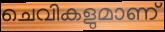
ചെവികളുമാണ്